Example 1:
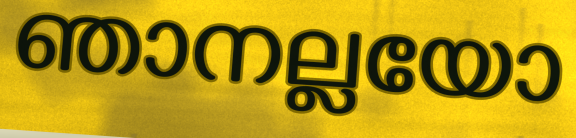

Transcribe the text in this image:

ഞാനല്ലയോ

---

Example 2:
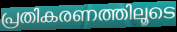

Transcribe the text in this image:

പ്രതികരണത്തിലൂടെ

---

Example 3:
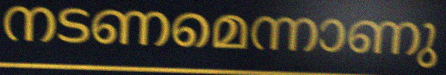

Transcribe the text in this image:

നടണമെന്നാണു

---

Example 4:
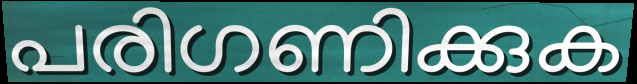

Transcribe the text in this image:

പരിഗണിക്കുക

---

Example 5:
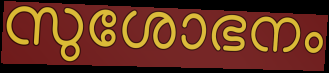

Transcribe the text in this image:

സുശോഭനം